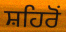
ਸ਼ਹਿਰੋਂ